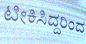
ಟೀಕಿಸಿದ್ದರಿಂದ